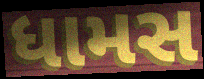
ધામસ